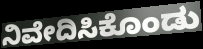
ನಿವೇದಿಸಿಕೊಂಡು